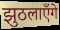
झुठलाएँगे